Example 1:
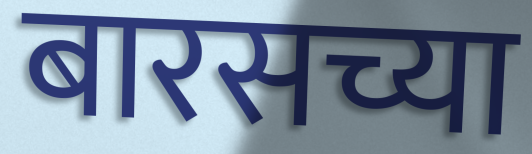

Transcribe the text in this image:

बारसच्या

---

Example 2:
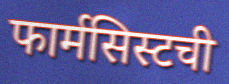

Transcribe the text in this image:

फार्मसिस्टची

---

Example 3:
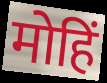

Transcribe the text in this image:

मोहिं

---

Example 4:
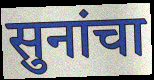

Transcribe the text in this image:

सुनांचा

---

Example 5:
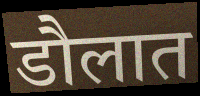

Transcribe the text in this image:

डौलात